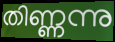
തിണ്ണന്നു